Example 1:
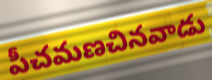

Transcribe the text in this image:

పీచమణచినవాడు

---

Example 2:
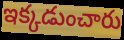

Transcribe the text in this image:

ఇక్కడుంచారు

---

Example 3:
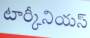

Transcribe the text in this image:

టార్కీనియస్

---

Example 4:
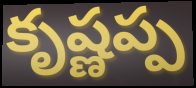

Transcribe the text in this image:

కృష్ణప్ప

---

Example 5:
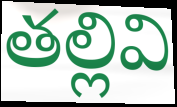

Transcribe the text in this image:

తల్లివి